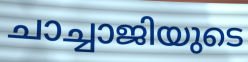
ചാച്ചാജിയുടെ